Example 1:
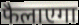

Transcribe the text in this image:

फैलाएगा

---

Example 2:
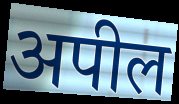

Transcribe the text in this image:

अपील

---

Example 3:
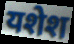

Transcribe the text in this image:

यशेश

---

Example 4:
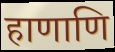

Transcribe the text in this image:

हाणाणि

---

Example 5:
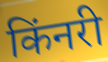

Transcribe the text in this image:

किंनरी